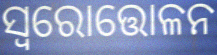
ସ୍ବରୋତ୍ତୋଳନ